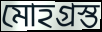
মোহগ্রস্ত